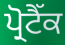
ਪ੍ਰੋਟੈੱਕ